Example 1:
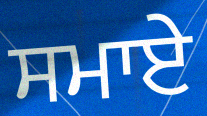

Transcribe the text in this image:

ਸਮਾਏ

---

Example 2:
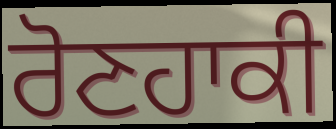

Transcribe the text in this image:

ਰੋਣਹਾਕੀ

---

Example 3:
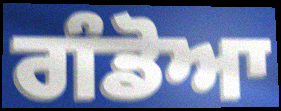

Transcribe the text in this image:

ਗੰਡੋਆ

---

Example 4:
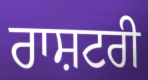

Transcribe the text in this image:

ਰਾਸ਼ਟਰੀ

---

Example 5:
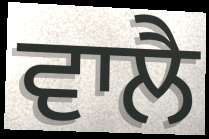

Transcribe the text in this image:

ਵਾਲੈ